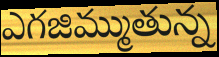
ఎగజిమ్ముతున్న